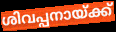
ശിവപ്പനായ്ക്ക്